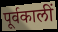
पूर्वकालीं